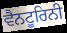
ਵੈਨਟੂਰਿਨੀ